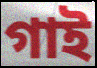
গাই